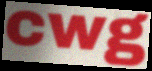
cwg